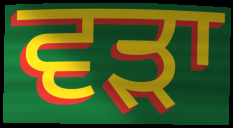
ਵੜਾ